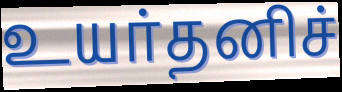
உயர்தனிச்